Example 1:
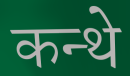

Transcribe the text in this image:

कन्थे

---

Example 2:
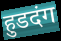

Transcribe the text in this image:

हुडदंग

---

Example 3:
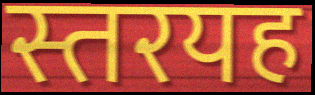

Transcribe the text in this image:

स्तरयह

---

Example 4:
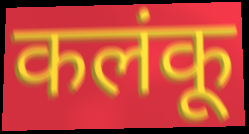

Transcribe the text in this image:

कलंकू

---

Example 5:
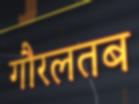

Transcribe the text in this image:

गौरलतब